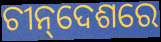
ଚୀନ୍‌ଦେଶରେ